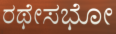
ರಥೇಸಭೋ